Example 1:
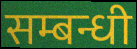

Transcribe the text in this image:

सम्‍बन्‍धी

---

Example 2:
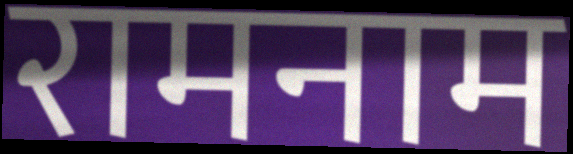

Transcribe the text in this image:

रामनाम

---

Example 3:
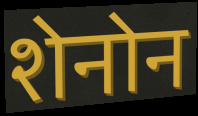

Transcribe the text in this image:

शेनोन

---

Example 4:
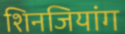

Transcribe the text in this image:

शिनजियांग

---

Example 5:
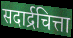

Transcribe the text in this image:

सदार्द्रचित्ता